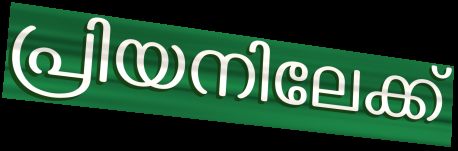
പ്രിയനിലേക്ക്